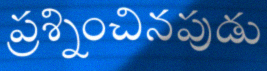
ప్రశ్నించినపుడు